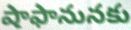
షాఫానునకు